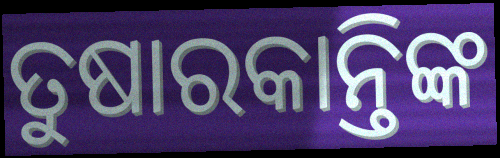
ତୁଷାରକାନ୍ତିଙ୍କ